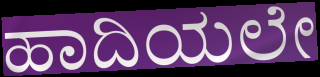
ಹಾದಿಯಲೇ